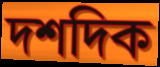
দশদিক